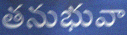
తనుభువా